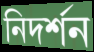
নিদর্শন